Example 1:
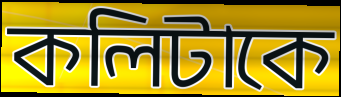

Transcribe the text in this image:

কলিটাকে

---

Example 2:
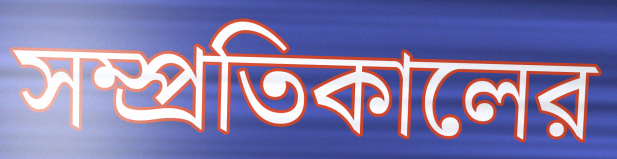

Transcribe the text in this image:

সম্প্রতিকালের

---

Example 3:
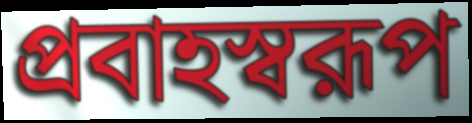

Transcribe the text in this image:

প্রবাহস্বরূপ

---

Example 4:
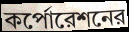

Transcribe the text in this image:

কর্পোরেশনের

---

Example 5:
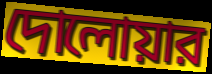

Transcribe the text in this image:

দোলোয়ার